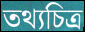
তথ্যচিত্ৰ